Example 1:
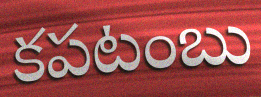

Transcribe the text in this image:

కపటంబు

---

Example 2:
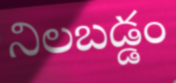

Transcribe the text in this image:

నిలబడ్డం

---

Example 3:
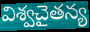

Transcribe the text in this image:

విశ్వచైతన్య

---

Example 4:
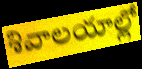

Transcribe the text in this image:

శివాలయాల్లో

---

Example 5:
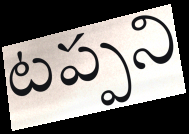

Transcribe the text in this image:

టప్పని